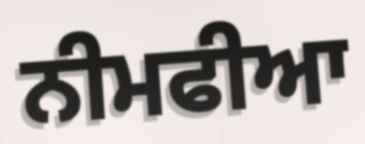
ਨੀਮਫੀਆ